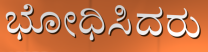
ಭೋಧಿಸಿದರು